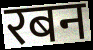
रबन